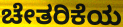
ಚೇತರಿಕೆಯ